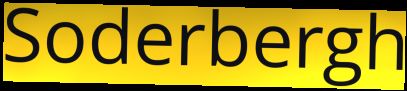
Soderbergh